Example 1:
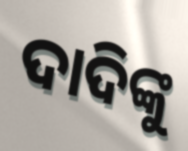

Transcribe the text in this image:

ଦାଦିଙ୍କୁ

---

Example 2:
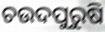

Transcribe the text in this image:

ଚଉଦପୁରୁଷି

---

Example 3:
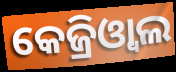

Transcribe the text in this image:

କେଜ୍ରିଓ୍ଵାଲ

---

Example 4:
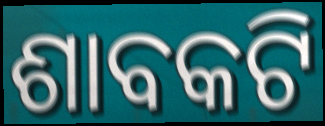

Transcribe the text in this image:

ଶାବକଟି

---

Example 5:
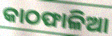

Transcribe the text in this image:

କାଠଫାଳିଆ